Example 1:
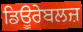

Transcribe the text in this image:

ਡਿਊਰੇਬਲਜ਼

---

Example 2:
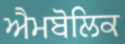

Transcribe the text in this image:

ਐਮਬੋਲਿਕ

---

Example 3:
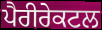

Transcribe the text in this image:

ਪੈਰੀਰੇਕਟਲ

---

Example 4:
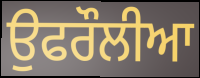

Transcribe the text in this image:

ਉਫਰੌਲੀਆ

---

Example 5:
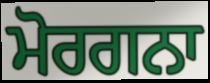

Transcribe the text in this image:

ਮੋਰਗਨਾ